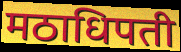
मठाधिपती